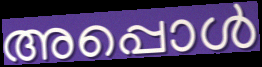
അപ്പൊൾ